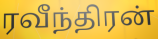
ரவீந்திரன்